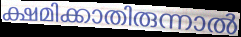
ക്ഷമിക്കാതിരുന്നാൽ